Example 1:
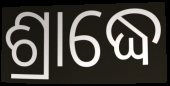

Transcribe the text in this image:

ଶ୍ରାଦ୍ଧେ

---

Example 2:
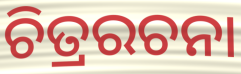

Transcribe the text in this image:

ଚିତ୍ରରଚନା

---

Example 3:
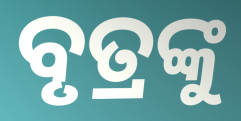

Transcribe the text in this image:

ବୃତ୍ରଙ୍କୁ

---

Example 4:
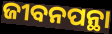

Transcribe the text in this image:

ଜୀବନପନ୍ଥା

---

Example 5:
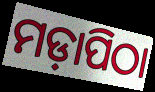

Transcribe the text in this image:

ମଡ଼ାପିଠା